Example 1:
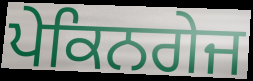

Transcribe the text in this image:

ਪੇਕਿਨਗੇਜ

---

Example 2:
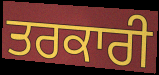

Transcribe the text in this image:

ਤਰਕਾਰੀ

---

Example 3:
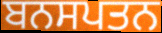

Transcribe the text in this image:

ਬਨਸਪਤਨ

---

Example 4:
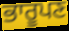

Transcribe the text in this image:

ਭਾਰੂਪਣ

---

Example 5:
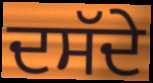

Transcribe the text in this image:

ਦਸੱਦੇ